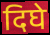
दिघे